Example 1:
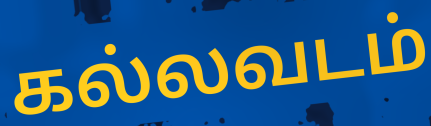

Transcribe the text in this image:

கல்லவடம்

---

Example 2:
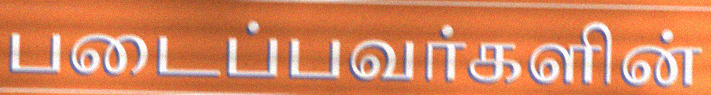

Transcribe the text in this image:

படைப்பவர்களின்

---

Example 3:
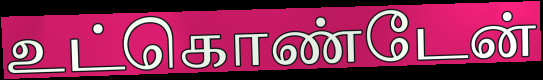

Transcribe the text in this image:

உட்கொண்டேன்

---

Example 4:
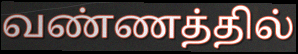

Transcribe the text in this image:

வண்ணத்தில்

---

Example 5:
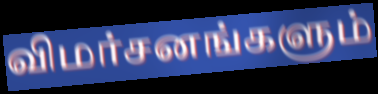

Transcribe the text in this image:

விமர்சனங்களும்